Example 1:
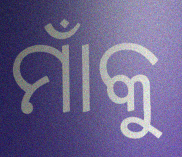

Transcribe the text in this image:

ମାଁକୁ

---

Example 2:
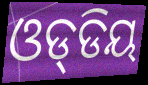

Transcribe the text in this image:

ଓଡ୍‌ଡିୟ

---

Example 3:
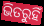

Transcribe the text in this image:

ଭିତରୁହିଁ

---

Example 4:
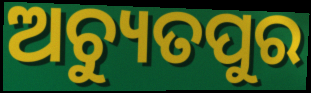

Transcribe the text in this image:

ଅଚ୍ୟୁତପୁର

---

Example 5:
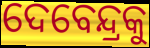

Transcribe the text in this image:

ଦେବେନ୍ଦ୍ରକୁ